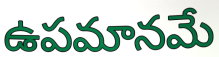
ఉపమానమే